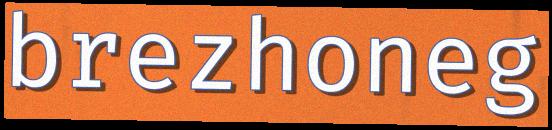
brezhoneg